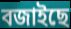
বজাইছে